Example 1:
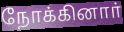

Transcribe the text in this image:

நோக்கினார்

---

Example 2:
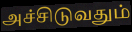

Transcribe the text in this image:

அச்சிடுவதும்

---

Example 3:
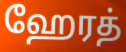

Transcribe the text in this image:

ஹேரத்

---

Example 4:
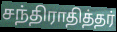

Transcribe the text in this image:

சந்திராதித்தர்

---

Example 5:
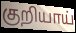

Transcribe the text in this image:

குறியாய்